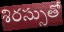
శిరస్సుతో